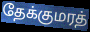
தேக்குமரத்